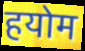
हयोम